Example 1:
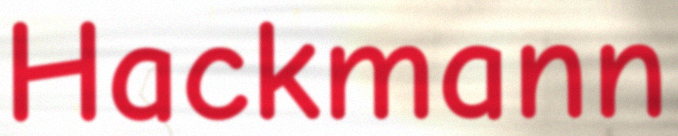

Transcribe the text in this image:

Hackmann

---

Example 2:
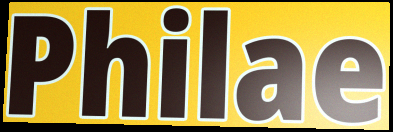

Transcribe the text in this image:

Philae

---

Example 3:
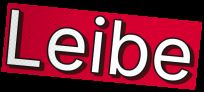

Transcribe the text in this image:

Leibe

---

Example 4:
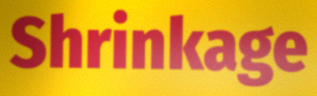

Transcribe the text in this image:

Shrinkage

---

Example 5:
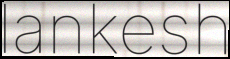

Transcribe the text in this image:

lankesh